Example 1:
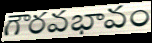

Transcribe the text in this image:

గౌరవభావం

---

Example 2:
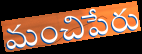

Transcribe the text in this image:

మంచిపేరు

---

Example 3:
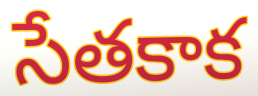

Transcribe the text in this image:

సేతకాక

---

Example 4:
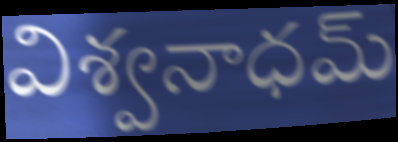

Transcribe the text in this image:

విశ్వనాధమ్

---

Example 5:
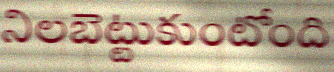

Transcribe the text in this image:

నిలబెట్టుకుంటోంది